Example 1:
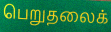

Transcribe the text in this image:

பெறுதலைக்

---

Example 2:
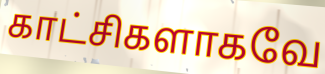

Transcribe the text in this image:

காட்சிகளாகவே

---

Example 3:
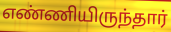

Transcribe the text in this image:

எண்ணியிருந்தார்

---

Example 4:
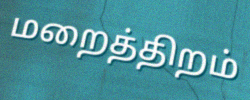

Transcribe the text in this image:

மறைத்திறம்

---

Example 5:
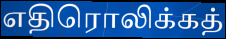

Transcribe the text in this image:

எதிரொலிக்கத்